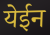
येईन